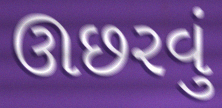
ઊછરવું